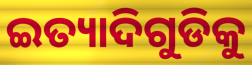
ଇତ୍ୟାଦିଗୁଡିକୁ